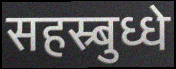
सहस्र्बुध्धे